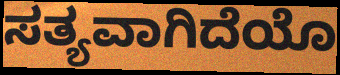
ಸತ್ಯವಾಗಿದೆಯೊ